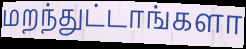
மறந்துட்டாங்களா